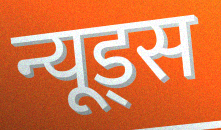
न्यूड्स